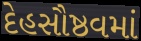
દેહસૌષ્ઠવમાં